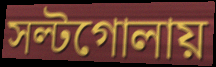
সল্টগোলায়